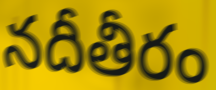
నదీతీరం